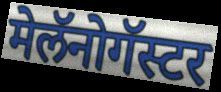
मेलॅनोगॅस्टर